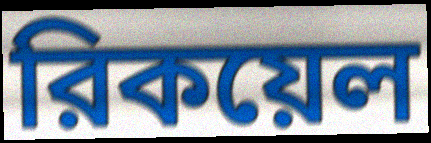
রিকয়েল